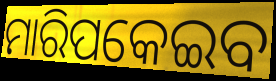
ମାରିପକେଇବ